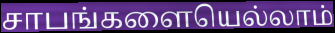
சாபங்களையெல்லாம்